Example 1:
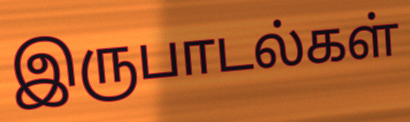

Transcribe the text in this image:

இருபாடல்கள்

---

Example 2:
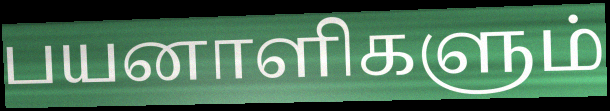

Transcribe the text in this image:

பயனாளிகளும்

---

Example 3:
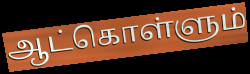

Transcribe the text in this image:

ஆட்கொள்ளும்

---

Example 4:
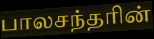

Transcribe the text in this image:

பாலசந்தரின்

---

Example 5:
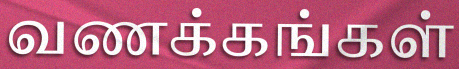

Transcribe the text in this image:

வணக்கங்கள்